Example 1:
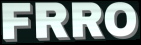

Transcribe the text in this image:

FRRO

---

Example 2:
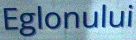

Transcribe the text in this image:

Eglonului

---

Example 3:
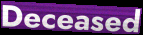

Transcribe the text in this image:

Deceased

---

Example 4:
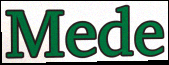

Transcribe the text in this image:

Mede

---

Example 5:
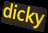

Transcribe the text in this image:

dicky